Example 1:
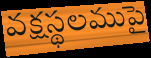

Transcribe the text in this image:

వక్షస్థలముపై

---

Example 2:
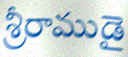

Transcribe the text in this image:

శ్రీరాముడై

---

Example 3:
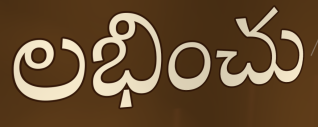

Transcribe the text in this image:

లభించు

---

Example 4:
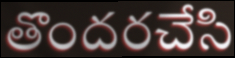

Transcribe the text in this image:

తొందరచేసి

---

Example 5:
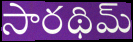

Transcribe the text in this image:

సారథిమ్